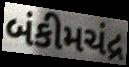
બંકીમચંદ્ર